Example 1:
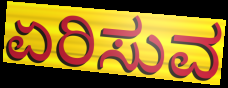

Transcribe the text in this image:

ಏರಿಸುವ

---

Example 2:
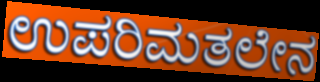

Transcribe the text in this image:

ಉಪರಿಮತಲೇನ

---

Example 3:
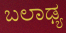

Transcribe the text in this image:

ಬಲಾಢ್ಯ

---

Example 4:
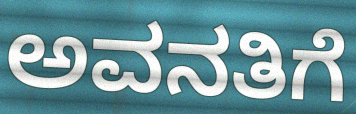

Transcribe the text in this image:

ಅವನತಿಗೆ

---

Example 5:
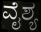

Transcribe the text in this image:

ವೈಶ್ಯ